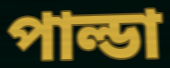
পাল্ডা